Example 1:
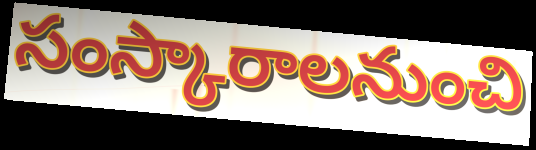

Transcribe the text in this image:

సంస్కారాలనుంచి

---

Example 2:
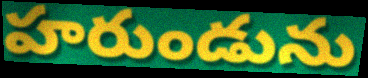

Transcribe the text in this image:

హరుండును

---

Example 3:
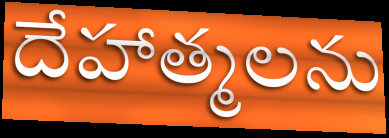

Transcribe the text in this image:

దేహాత్మలను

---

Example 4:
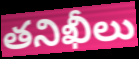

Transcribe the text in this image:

తనిఖీలు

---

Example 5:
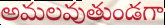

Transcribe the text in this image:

అమలవుతుండగా